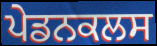
ਪੇਡਨਕਲਸ